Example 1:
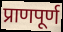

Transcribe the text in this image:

प्राणपूर्ण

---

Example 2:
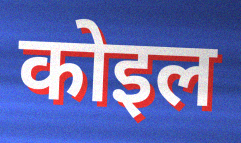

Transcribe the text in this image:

कोइल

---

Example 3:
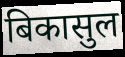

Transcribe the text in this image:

बिकासुल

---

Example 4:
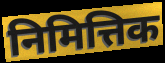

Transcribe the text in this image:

निमित्तिक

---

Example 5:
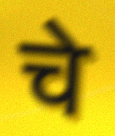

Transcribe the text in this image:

चे